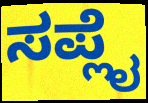
ಸಪ್ಲೈ